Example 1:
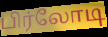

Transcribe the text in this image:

பிர்லோடி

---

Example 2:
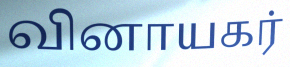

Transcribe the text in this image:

வினாயகர்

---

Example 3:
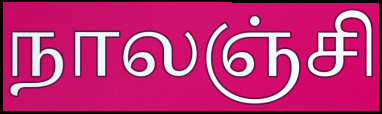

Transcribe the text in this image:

நாலஞ்சி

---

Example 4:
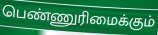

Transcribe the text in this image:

பெண்ணுரிமைக்கும்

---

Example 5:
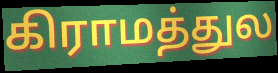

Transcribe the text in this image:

கிராமத்துல